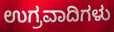
ಉಗ್ರವಾದಿಗಳು